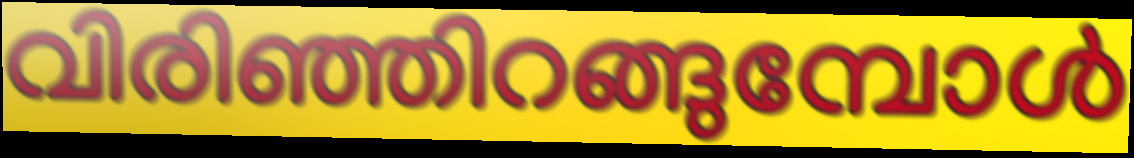
വിരിഞ്ഞിറങ്ങുമ്പോൾ